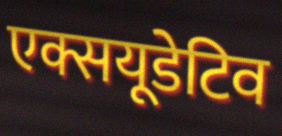
एक्सयूडेटिव